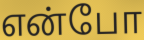
என்போ